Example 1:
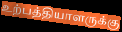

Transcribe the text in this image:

உற்பத்தியாளருக்கு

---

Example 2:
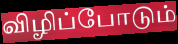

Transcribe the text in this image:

விழிப்போடும்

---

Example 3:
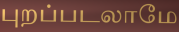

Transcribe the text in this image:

புறப்படலாமே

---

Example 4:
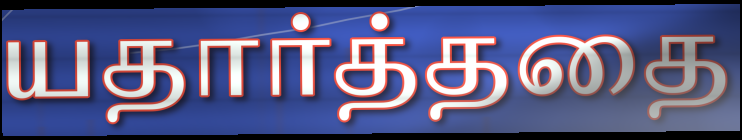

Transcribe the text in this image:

யதார்த்ததை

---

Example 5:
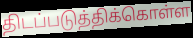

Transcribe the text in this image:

திடப்படுத்திக்கொள்ள